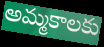
అమ్మకాలకు